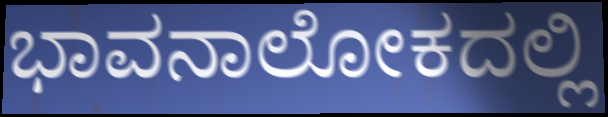
ಭಾವನಾಲೋಕದಲ್ಲಿ